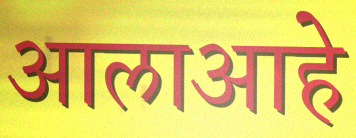
आलाआहे